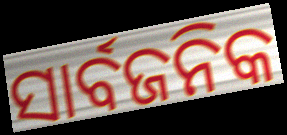
ସାର୍ବଜନିକ